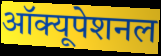
ऑक्यूपेशनल